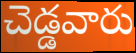
చెడ్డవారు